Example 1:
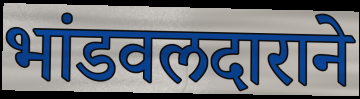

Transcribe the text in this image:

भांडवलदाराने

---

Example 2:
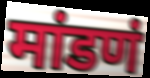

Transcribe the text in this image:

मांडणं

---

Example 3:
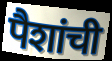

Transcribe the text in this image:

पैशांची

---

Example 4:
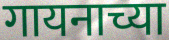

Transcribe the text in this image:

गायनाच्या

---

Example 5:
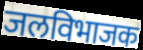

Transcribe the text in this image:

जलविभाजक